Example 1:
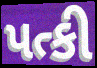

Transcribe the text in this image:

પત્કી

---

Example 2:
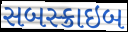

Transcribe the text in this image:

સબસ્ક્રાઇબ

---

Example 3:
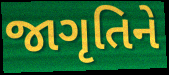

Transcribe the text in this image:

જાગૃતિને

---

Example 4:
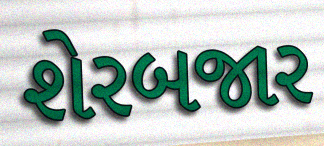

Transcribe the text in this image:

શેરબજાર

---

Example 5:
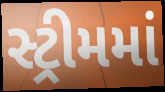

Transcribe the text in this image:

સ્ટ્રીમમાં